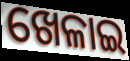
ଖେଳାଇ